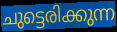
ചുട്ടെരിക്കുന്ന